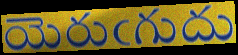
యెరుఁగుదు